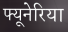
फ्यूनेरिया